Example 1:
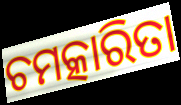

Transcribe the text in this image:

ଚମତ୍କାରିତା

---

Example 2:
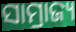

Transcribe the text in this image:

ସାମ୍ରାଜ୍ଯ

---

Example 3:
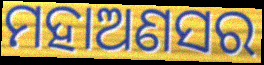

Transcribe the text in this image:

ମହାଅଣସର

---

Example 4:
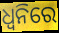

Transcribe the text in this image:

ଧ୍ଵନିରେ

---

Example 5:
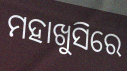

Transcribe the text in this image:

ମହାଖୁସିରେ